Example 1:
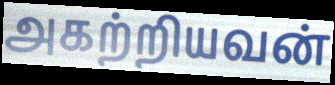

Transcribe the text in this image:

அகற்றியவன்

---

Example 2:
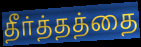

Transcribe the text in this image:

தீர்த்தத்தை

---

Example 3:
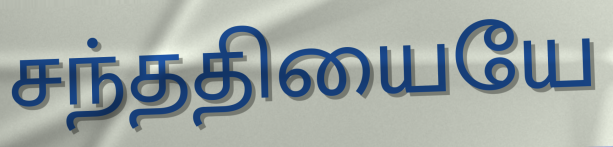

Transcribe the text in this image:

சந்ததியையே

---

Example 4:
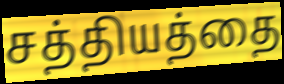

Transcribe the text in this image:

சத்தியத்தை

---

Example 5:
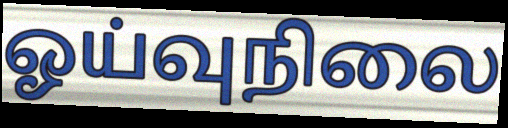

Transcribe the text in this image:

ஓய்வுநிலை